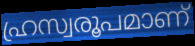
ഹ്രസ്വരൂപമാണ്